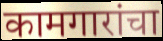
कामगारांचा